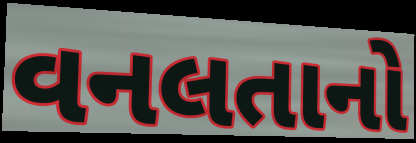
વનલતાનો